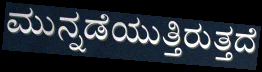
ಮುನ್ನಡೆಯುತ್ತಿರುತ್ತದೆ